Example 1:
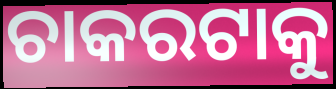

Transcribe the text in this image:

ଚାକରଟାକୁ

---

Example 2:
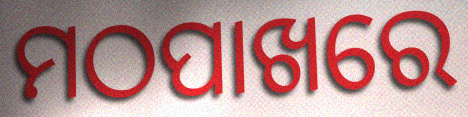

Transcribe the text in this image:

ମଠପାଖରେ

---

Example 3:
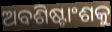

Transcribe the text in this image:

ଅବଶିଷ୍ଟାଂଶକୁ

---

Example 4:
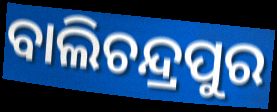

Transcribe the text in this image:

ବାଲିଚନ୍ଦ୍ରପୁର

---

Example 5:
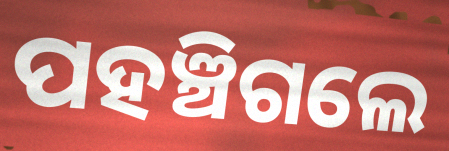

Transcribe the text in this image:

ପହଞ୍ଚିଗଲେ